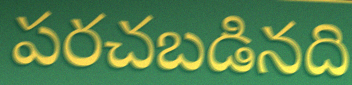
పరచబడినది